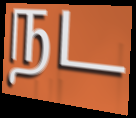
நட